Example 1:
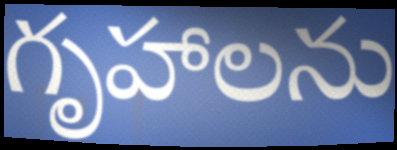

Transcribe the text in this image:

గృహాలను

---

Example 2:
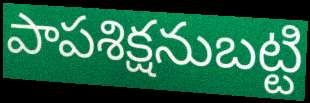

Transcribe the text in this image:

పాపశిక్షనుబట్టి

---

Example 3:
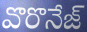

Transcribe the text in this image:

వొరొనేజ్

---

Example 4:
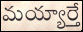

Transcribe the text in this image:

మయ్యార్తే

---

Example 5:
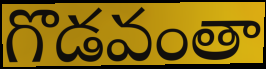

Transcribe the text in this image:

గొడవంతా